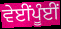
ਵੇਈਂਪੂੰਈਂ